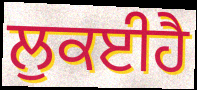
ਲੁਕਈਹੈ